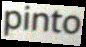
pinto